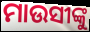
ମାଉସୀଙ୍କୁ